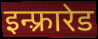
इन्फ़्रारेड